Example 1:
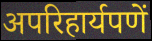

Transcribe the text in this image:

अपरिहार्यपणें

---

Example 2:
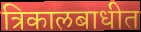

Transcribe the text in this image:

त्रिकालबाधीत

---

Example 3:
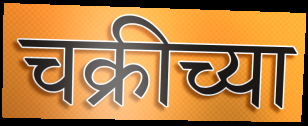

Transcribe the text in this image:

चक्रीच्या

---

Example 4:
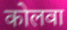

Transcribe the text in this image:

कोलवा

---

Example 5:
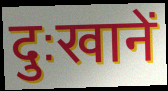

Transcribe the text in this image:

दुःखानें